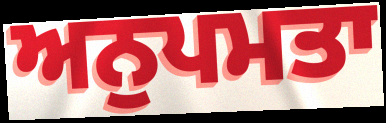
ਅਨੁਪਮਤਾ